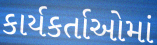
કાર્યકર્તાઓમાં